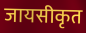
जायसीकृत